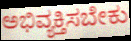
ಅಭಿವ್ಯಕ್ತಿಸಬೇಕು